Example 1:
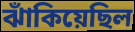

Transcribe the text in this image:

ঝাঁকিয়েছিল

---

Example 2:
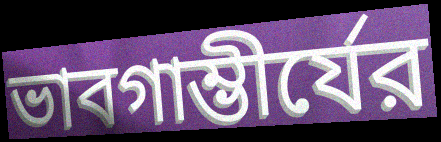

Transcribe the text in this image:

ভাবগাম্ভীর্যের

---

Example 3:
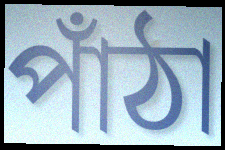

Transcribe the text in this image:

পাঁঠা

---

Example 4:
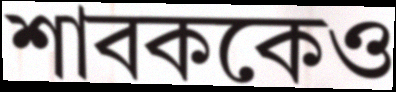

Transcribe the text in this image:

শাবককেও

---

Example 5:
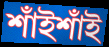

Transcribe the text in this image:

শাঁইশাঁই